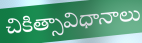
చికిత్సావిధానాలు